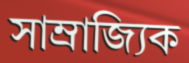
সাম্ৰাজ্যিক